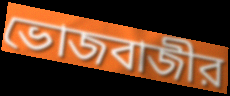
ভোজবাজীর